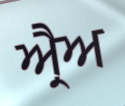
ਅ੍ਰੈਅ